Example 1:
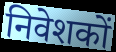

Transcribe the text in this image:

निवेशकों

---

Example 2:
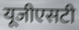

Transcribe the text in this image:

यूजीएसटी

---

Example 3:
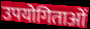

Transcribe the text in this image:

उपयोगिताओं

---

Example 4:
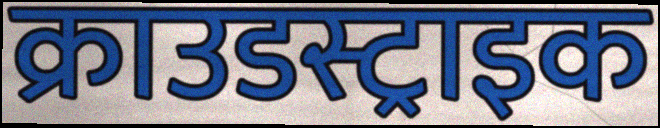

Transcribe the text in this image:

क्राउडस्ट्राइक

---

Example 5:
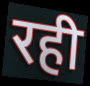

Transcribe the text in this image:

रही